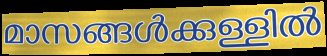
മാസങ്ങൾക്കുള്ളിൽ